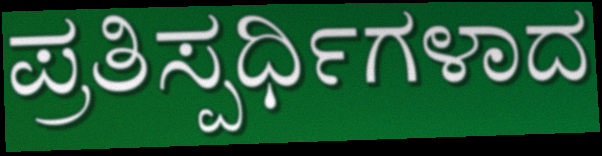
ಪ್ರತಿಸ್ಪರ್ಧಿಗಳಾದ